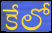
కేలో